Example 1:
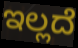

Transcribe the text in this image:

ಇಲ್ಲದೆ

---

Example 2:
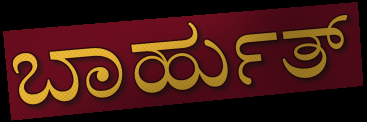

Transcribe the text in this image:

ಬಾರ್ಹುತ್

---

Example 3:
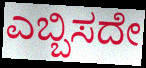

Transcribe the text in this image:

ಎಬ್ಬಿಸದೇ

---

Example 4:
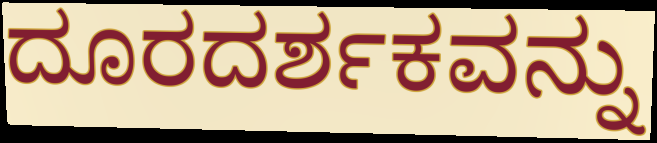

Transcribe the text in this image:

ದೂರದರ್ಶಕವನ್ನು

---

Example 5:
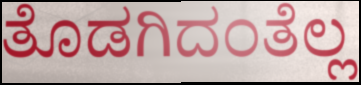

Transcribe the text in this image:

ತೊಡಗಿದಂತೆಲ್ಲ